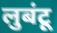
लुबंटू